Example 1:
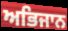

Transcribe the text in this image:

ਅਭਿਜਾਨ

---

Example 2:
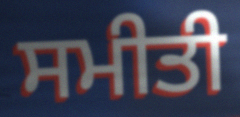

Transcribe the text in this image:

ਸਮੀਤੀ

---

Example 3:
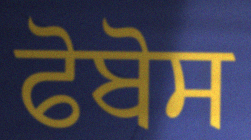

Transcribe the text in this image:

ਫੋਬੋਸ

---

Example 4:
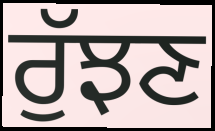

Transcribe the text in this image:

ਰੁੱਝਣ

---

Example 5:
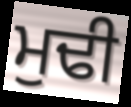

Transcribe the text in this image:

ਮੁਢੀ